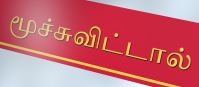
மூச்சுவிட்டால்